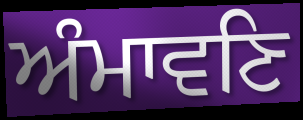
ਅੰਮਾਵਣਿ